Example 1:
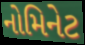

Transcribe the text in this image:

નોમિનેટ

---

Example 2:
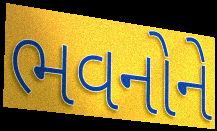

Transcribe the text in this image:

ભવનોને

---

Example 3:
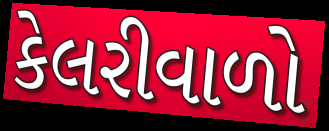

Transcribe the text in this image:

કેલરીવાળો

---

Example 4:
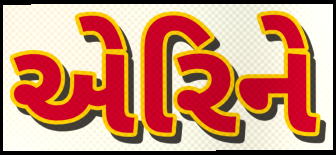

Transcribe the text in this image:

એરિને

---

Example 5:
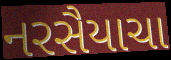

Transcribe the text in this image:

નરસૈયાચા